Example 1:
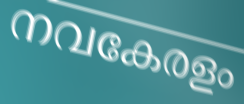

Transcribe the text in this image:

നവകേരളം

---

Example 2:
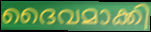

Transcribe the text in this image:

ദൈവമാക്കി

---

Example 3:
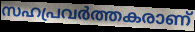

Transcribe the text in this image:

സഹപ്രവർത്തകരാണ്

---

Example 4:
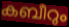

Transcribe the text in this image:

കബീറും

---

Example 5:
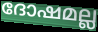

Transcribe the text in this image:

ദോഷമല്ല